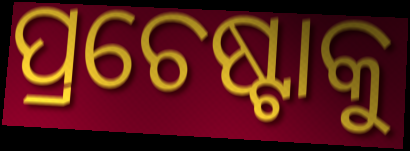
ପ୍ରଚେଷ୍ଟାକୁ